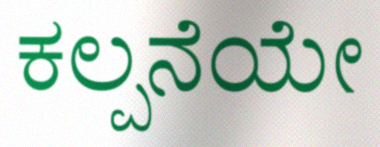
ಕಲ್ಪನೆಯೇ